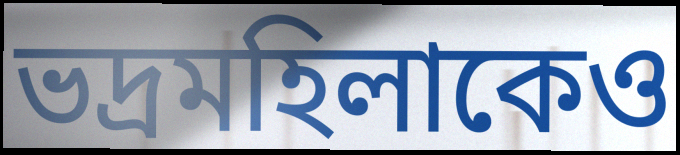
ভদ্রমহিলাকেও